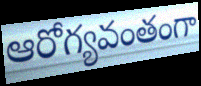
ఆరోగ్యవంతంగా